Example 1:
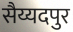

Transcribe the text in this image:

सैय्यदपुर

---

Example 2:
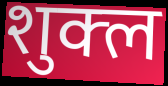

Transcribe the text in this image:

शुक्‍ल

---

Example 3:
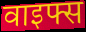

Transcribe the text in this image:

वाइफ्स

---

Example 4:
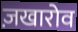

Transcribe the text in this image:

ज़खारोव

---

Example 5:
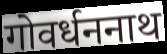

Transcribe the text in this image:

गोवर्धननाथ